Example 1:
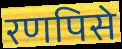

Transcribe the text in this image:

रणपिसे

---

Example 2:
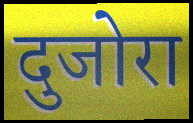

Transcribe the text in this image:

दुजोरा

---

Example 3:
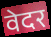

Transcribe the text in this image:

वेदर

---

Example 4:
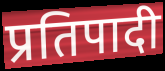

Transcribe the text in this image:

प्रतिपादी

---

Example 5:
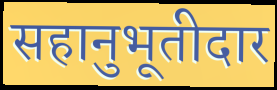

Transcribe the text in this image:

सहानुभूतीदार